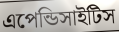
এপেন্ডিসাইটিস